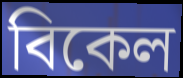
বিকেল